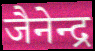
जैनेन्‍द्र